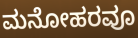
ಮನೋಹರವೂ